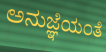
ಅನುಜ್ಞೆಯಂತೆ